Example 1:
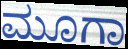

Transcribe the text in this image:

ಮೂಗಾ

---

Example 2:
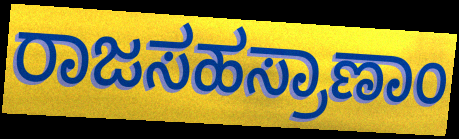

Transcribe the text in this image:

ರಾಜಸಹಸ್ರಾಣಾಂ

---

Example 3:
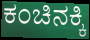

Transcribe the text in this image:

ಕಂಚಿನಕ್ಕಿ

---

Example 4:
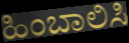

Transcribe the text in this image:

ಹಿಂಬಾಲಿಸಿ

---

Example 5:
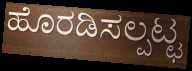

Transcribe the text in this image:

ಹೊರಡಿಸಲ್ಪಟ್ಟ